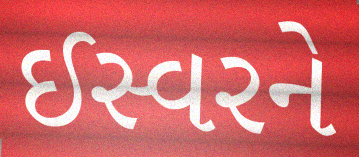
ઈસ્વરને